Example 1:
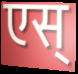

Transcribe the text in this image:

एस्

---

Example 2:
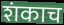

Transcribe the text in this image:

शंकाच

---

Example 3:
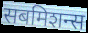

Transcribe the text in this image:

सबमिशन्स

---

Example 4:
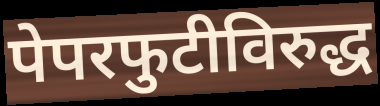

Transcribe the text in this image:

पेपरफुटीविरुद्ध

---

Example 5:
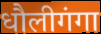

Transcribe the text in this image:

धौलीगंगा